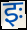
इः